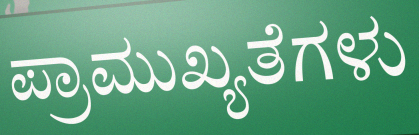
ಪ್ರಾಮುಖ್ಯತೆಗಳು